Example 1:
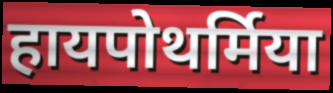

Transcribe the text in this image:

हायपोथर्मिया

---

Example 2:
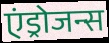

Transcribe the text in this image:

एंड्रोजन्स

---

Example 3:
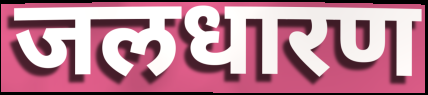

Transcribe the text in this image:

जलधारण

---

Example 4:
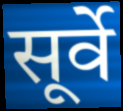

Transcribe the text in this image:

सूर्वे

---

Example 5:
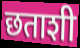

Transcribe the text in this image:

छताशी